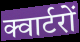
क्वार्टरों